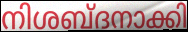
നിശബ്ദനാക്കി